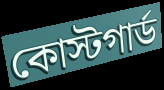
কোস্টগার্ড